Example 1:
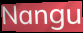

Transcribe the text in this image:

Nangu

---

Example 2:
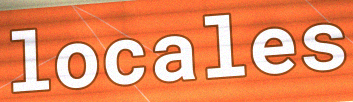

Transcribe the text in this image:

locales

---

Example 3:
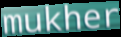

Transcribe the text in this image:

mukher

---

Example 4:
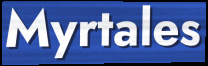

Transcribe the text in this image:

Myrtales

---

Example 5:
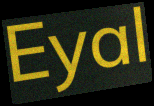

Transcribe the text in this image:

Eyal